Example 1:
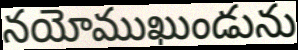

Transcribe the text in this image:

నయోముఖుండును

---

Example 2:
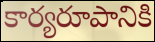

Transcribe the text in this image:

కార్యరూపానికి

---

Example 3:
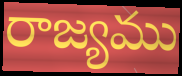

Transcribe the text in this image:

రాజ్యము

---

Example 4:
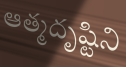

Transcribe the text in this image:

ఆత్మదృష్టిని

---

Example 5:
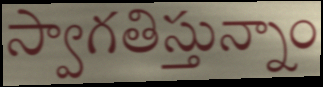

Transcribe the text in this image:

స్వాగతిస్తున్నాం